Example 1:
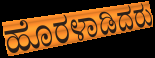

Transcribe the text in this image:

ಹೊರಳಾಡಿದರು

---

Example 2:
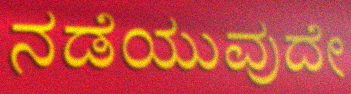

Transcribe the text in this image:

ನಡೆಯುವುದೇ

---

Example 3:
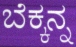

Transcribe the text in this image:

ಬೆಕ್ಕನ್ನ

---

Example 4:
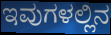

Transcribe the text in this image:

ಇವುಗಳಲ್ಲಿನ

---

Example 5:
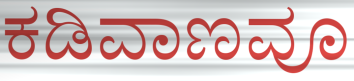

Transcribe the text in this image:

ಕಡಿವಾಣವೂ